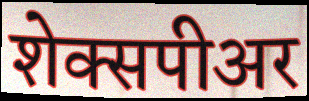
शेक्सपीअर